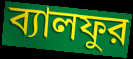
ব্যালফুর